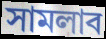
সামলাব